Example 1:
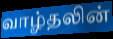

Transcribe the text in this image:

வாழ்தலின்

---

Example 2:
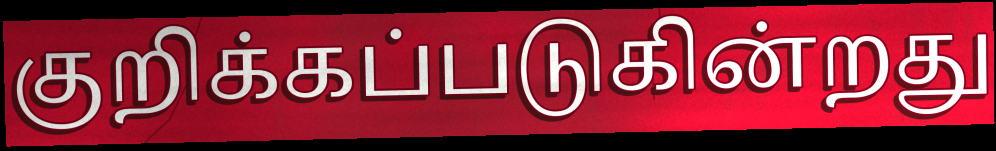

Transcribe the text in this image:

குறிக்கப்படுகின்றது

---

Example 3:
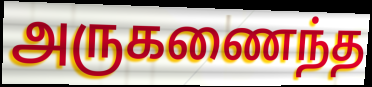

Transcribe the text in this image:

அருகணைந்த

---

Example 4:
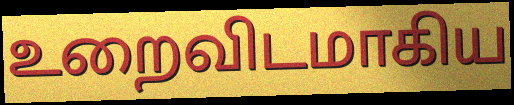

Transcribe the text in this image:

உறைவிடமாகிய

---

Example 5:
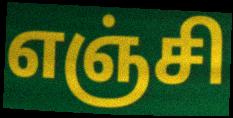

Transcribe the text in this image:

எஞ்சி